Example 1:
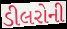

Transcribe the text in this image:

ડીલરોની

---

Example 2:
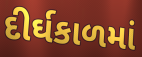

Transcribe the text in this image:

દીર્ઘકાળમાં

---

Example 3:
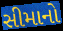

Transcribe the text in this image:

સીમાનો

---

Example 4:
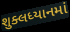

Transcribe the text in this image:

શુક્લધ્યાનમાં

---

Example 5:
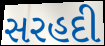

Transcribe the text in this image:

સરહદી